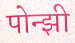
पोन्झी